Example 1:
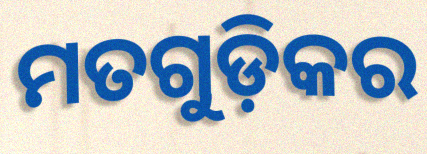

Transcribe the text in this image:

ମତଗୁଡ଼ିକର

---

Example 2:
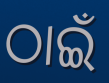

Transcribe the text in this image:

ଠାଇଁ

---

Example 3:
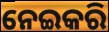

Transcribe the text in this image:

ନେଇକରି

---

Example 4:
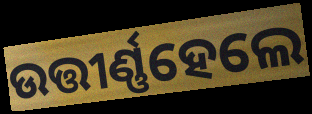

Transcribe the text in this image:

ଉତ୍ତୀର୍ଣ୍ଣହେଲେ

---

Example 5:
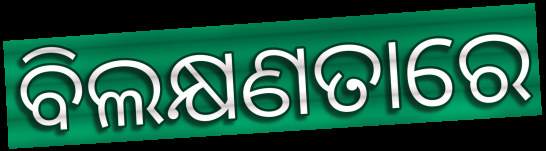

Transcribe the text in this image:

ବିଲକ୍ଷଣତାରେ